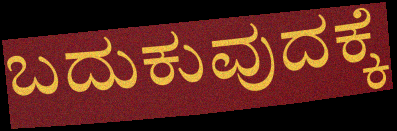
ಬದುಕುವುದಕ್ಕೆ